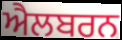
ਐਲਬਰਨ